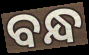
ବନ୍ଧ